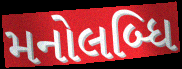
મનોલબ્ધિ